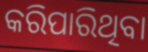
କରିପାରିଥିବା